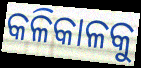
କଳିକାଳକୁ